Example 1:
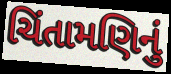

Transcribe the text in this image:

ચિંતામણિનું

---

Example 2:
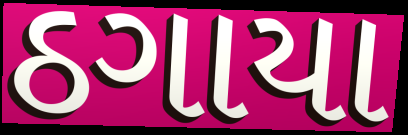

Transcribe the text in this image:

ઠગાયા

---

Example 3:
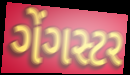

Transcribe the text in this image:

ગેંગસ્ટર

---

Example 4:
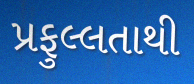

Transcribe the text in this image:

પ્રફુલ્લતાથી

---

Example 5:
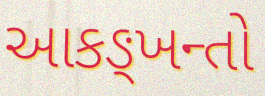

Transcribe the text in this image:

આકઙ્ખન્તો